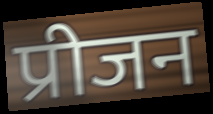
प्रीजन